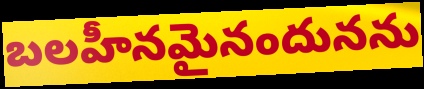
బలహీనమైనందునను